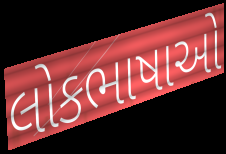
લોકભાષાઓ